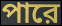
পারে